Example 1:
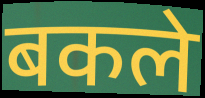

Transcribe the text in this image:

बकले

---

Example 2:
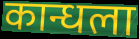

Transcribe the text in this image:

कान्धला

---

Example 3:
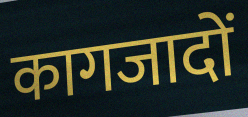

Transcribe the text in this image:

कागजादों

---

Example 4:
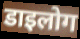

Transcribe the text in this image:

डाइलोग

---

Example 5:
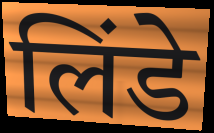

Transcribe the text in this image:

लिंडे